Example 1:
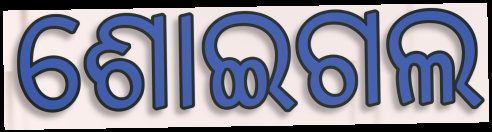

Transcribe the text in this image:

ଶୋଇଗଲ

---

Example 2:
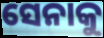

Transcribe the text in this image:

ସେନାକୁ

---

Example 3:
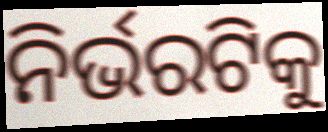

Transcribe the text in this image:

ନିର୍ଭରଟିକୁ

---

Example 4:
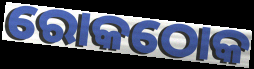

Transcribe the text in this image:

ରୋକଠୋକ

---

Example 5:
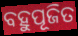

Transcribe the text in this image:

ବହୁପୂଜିତ